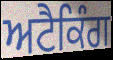
ਅਟੈਕਿੰਗ